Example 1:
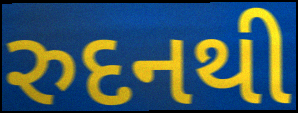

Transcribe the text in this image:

રુદનથી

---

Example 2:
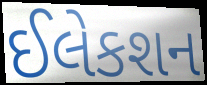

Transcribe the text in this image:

ઈલેકશન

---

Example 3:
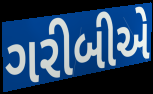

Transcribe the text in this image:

ગરીબીએ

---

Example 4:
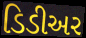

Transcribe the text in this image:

ડિડીઅર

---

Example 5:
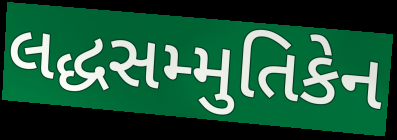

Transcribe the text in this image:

લદ્ધસમ્મુતિકેન